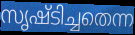
സൃഷ്ടിച്ചതെന്ന